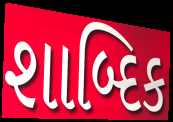
શાબ્દિક